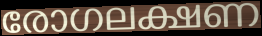
രോഗലക്ഷണ